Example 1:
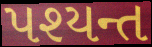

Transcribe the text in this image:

પશ્યન્ત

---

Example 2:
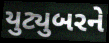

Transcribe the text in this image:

યુટ્યુબરને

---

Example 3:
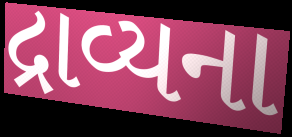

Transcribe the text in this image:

દ્રાવ્યના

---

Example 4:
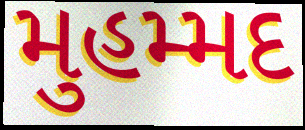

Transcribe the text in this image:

મુહમ્મદ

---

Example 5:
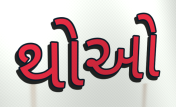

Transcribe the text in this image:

થોઓ